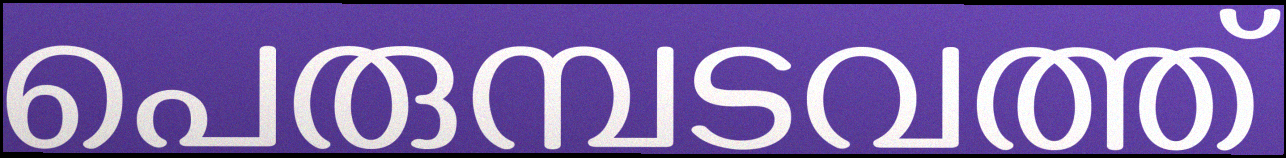
പെരുമ്പടവത്ത്